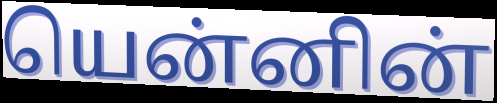
யென்னின்